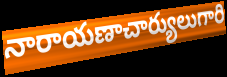
నారాయణాచార్యులుగారి